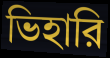
ভিহারি